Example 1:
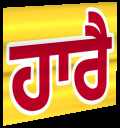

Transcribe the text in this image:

ਹਾਰੈ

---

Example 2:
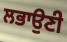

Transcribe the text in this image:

ਲਭਾਉਣੀ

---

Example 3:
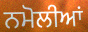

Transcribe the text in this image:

ਨਮੋਲੀਆਂ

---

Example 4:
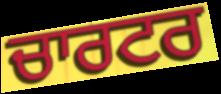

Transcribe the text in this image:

ਚਾਰਟਰ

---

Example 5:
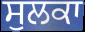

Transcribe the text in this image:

ਸੁਲਕਾ